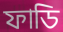
ফাডি